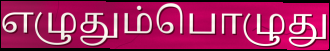
எழுதும்பொழுது